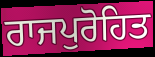
ਰਾਜਪੁਰੋਹਿਤ